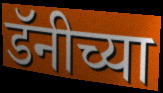
डॅनीच्या